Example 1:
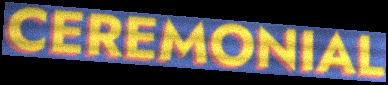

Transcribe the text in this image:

CEREMONIAL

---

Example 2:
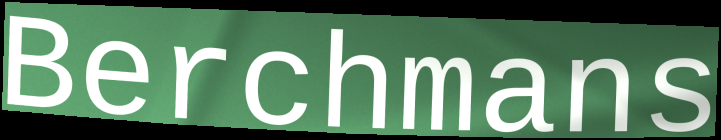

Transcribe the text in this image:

Berchmans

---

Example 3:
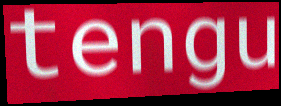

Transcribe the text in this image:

tengu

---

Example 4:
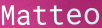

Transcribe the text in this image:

Matteo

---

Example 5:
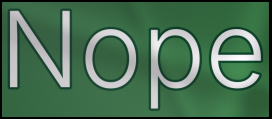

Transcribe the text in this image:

Nope